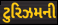
ટુરિઝમની